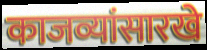
काजव्यांसारखे